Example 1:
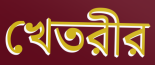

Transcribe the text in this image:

খেতরীর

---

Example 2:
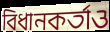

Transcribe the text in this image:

বিধানকর্তাও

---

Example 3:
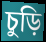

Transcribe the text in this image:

চুড়ি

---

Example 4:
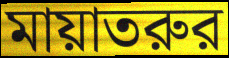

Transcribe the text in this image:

মায়াতরুর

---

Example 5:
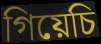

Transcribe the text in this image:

গিয়েচি